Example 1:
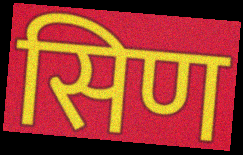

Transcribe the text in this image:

सिण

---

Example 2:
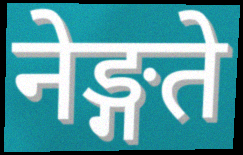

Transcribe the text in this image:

नेङ्गते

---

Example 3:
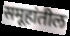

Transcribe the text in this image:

समूहांतील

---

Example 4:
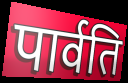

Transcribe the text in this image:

पार्वति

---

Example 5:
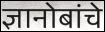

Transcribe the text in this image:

ज्ञानोबांचे